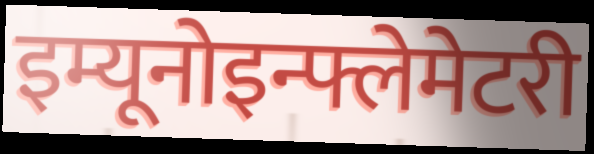
इम्यूनोइन्फ्लेमेटरी